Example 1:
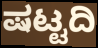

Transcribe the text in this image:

ಷಟ್ಟದಿ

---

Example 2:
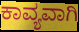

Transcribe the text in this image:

ಕಾವ್ಯವಾಗಿ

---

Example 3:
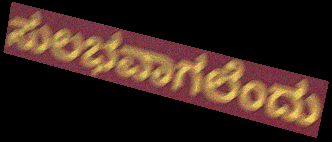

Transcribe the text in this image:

ಸುಲಭವಾಗಲೆಂದು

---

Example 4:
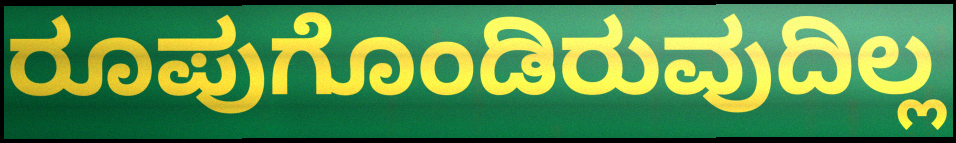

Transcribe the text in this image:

ರೂಪುಗೊಂಡಿರುವುದಿಲ್ಲ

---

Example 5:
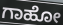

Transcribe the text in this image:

ಗಾಹೋ